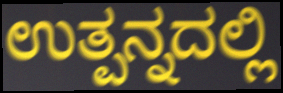
ಉತ್ಪನ್ನದಲ್ಲಿ